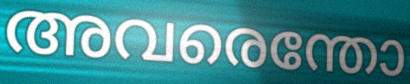
അവരെന്തോ